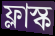
ফ্লাস্ক